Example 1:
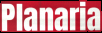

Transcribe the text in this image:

Planaria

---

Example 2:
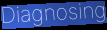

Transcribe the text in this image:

Diagnosing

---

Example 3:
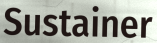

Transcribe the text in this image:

Sustainer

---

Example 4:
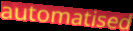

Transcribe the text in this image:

automatised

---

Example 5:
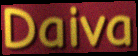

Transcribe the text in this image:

Daiva